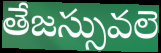
తేజస్సువలె